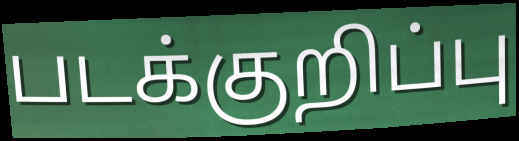
படக்குறிப்பு